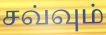
சவ்வும்